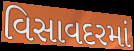
વિસાવદરમાં